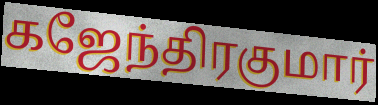
கஜேந்திரகுமார்